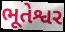
ભૂતેશ્વર